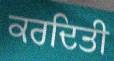
ਕਰਦਿਤੀ